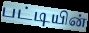
பட்டியின்